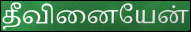
தீவினையேன்